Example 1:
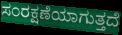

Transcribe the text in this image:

ಸಂರಕ್ಷಣೆಯಾಗುತ್ತದೆ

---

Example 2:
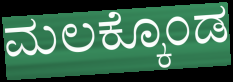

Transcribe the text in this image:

ಮಲಕ್ಕೊಂಡ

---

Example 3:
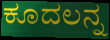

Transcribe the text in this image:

ಕೂದಲನ್ನ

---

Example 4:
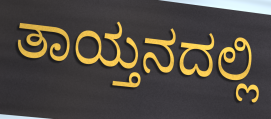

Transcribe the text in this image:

ತಾಯ್ತನದಲ್ಲಿ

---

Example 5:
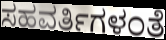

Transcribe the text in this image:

ಸಹವರ್ತಿಗಳಂತೆ